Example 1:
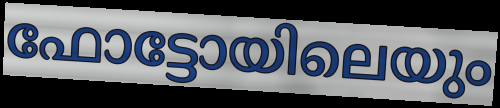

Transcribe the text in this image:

ഫോട്ടോയിലെയും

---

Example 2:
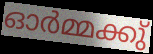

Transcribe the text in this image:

ഓർമ്മക്കു്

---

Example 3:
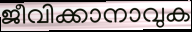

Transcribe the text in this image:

ജീവിക്കാനാവുക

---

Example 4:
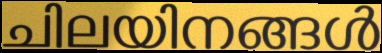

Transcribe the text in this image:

ചിലയിനങ്ങൾ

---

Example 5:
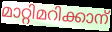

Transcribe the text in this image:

മാറ്റിമറിക്കാന്